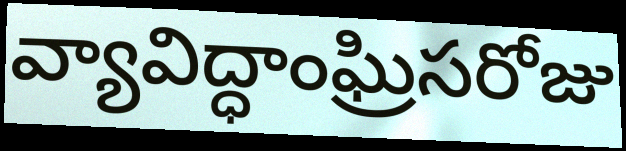
వ్యావిద్ధాంఘ్రిసరోజు